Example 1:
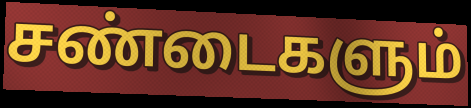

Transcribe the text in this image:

சண்டைகளும்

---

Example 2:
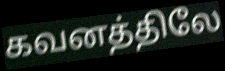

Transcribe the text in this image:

கவனத்திலே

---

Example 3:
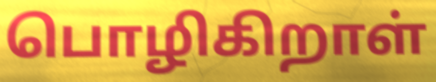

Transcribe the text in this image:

பொழிகிறாள்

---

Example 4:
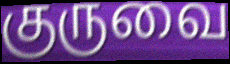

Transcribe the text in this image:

குருவை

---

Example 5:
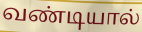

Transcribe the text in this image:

வண்டியால்